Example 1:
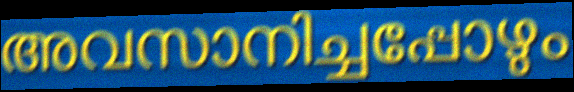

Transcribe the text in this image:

അവസാനിച്ചപ്പോഴും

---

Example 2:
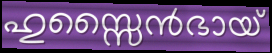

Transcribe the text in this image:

ഹുസ്സൈൻഭായ്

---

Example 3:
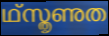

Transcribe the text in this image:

ഥ്സ്തൃണുത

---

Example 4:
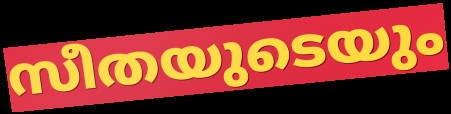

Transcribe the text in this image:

സീതയുടെയും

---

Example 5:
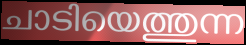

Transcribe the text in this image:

ചാടിയെത്തുന്ന